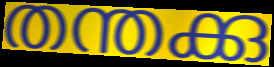
തന്തക്കു